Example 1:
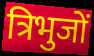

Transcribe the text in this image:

त्रिभुजों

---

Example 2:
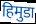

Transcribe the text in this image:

हिमुडा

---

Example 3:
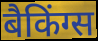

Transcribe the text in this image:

बैकिंग्स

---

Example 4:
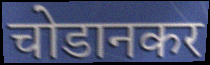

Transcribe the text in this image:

चोडानकर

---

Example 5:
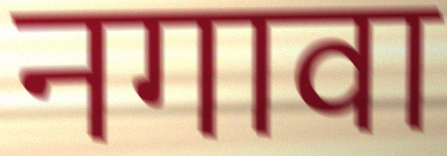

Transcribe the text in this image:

नगावा